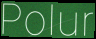
Polur